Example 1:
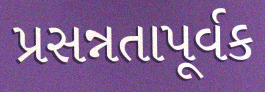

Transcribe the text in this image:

પ્રસન્નતાપૂર્વક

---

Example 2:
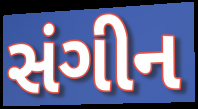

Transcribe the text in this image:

સંગીન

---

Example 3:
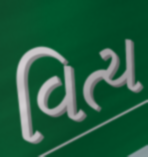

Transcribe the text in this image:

વિત્ય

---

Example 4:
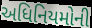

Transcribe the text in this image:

અધિનિયમોની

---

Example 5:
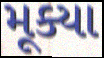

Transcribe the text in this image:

મૂક્યા